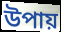
উপায়